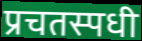
प्रचतस्पधी